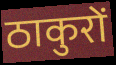
ठाकुरों